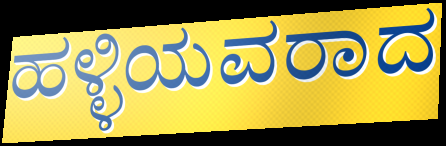
ಹಳ್ಳಿಯವರಾದ